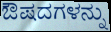
ಔಷದಗಳನ್ನು